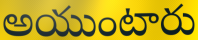
అయుంటారు